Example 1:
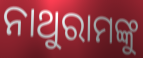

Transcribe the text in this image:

ନାଥୁରାମଙ୍କୁ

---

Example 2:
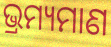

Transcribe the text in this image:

ଭ୍ରମ୍ୟମାଣ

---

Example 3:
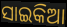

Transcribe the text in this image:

ସାଇକିଆ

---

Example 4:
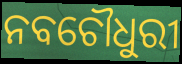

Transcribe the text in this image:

ନବଚୌଧୁରୀ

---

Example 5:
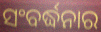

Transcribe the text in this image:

ସଂବର୍ଦ୍ଧନାର